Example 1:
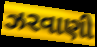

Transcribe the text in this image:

ઝરવાણી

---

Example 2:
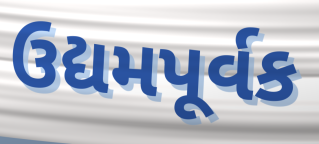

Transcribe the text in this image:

ઉદ્યમપૂર્વક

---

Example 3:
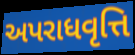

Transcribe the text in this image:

અપરાધવૃત્તિ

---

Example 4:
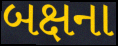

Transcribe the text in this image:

બક્ષના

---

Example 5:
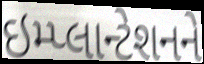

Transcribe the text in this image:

ઇમ્પ્લાન્ટેશનને